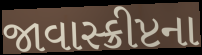
જાવાસ્ક્રીપ્ટના